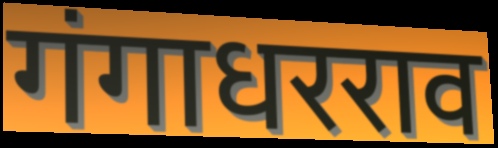
गंगाधरराव